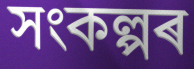
সংকল্পৰ